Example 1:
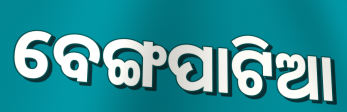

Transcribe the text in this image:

ବେଙ୍ଗପାଟିଆ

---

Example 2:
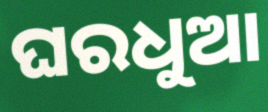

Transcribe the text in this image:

ଘରଧୁଆ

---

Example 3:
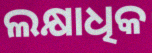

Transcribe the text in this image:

ଲକ୍ଷାଧିକ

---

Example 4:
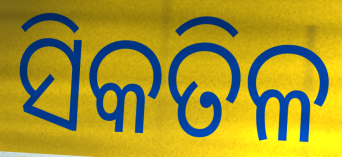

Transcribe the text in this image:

ସିକତିଳ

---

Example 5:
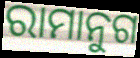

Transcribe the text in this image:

ରାମାନୁଗ